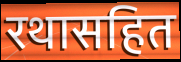
रथासहित